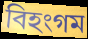
বিহংগম